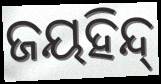
ଜୟହିନ୍ଦ୍